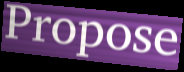
Propose